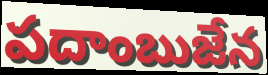
పదాంబుజేన